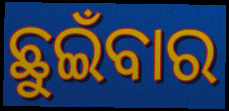
ଛୁଇଁବାର